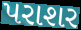
પરાશર